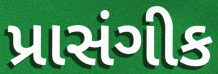
પ્રાસંગીક